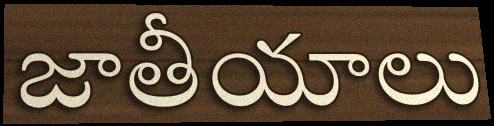
జాతీయాలు